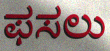
ಫಸಲು